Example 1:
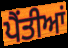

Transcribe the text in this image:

ਪੈਂਤੀਆਂ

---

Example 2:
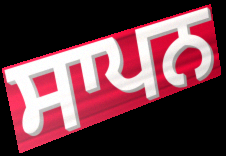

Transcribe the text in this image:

ਸਾਪਨ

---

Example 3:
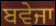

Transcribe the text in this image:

ਬਵੇਜਾ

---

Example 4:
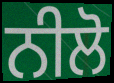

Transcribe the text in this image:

ਨੀਲੋ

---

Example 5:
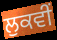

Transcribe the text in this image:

ਲੁਕਵੀਂ